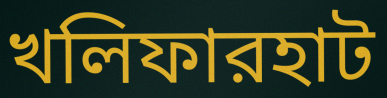
খলিফারহাট